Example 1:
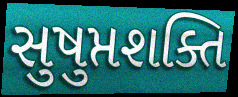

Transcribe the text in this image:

સુષુપ્તશક્તિ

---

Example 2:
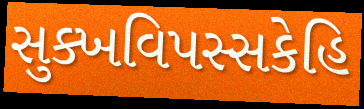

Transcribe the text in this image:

સુક્ખવિપસ્સકેહિ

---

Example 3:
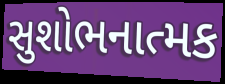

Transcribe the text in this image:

સુશોભનાત્મક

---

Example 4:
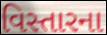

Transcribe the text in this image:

વિસ્તારના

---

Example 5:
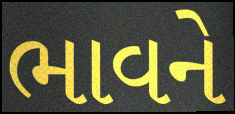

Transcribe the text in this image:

ભાવને